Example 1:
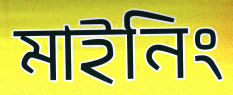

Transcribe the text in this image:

মাইনিং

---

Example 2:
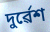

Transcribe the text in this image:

দুৰ্ৱেশ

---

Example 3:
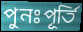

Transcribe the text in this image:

পুনঃপূৰ্তি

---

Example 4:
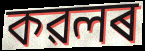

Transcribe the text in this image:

কৱলৰ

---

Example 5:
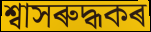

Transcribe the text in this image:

শ্বাসৰুদ্ধকৰ